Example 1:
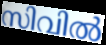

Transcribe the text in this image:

സിവിൽ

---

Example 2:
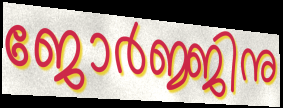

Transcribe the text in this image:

ജോർജ്ജിനു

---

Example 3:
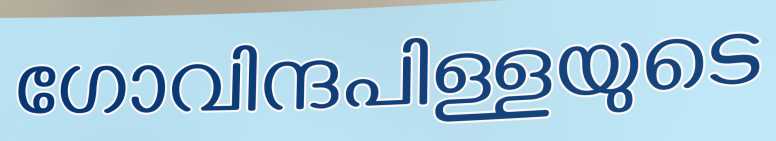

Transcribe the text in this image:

ഗോവിന്ദപിള്ളയുടെ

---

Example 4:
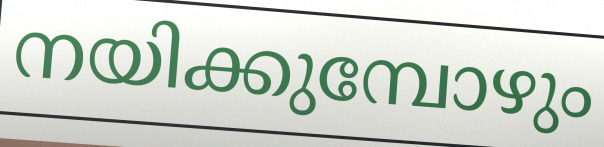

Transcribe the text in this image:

നയിക്കുമ്പോഴും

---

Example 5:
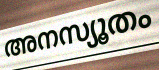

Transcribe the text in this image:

അനസ്യൂതം